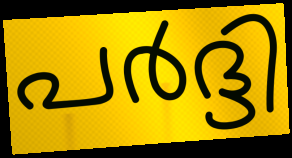
പർദ്ദി